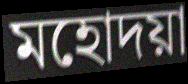
মহোদয়া